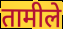
तामीले